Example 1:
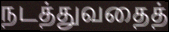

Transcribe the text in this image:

நடத்துவதைத்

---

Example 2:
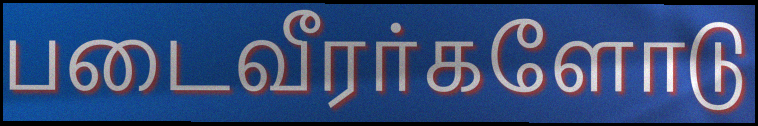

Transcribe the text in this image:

படைவீரர்களோடு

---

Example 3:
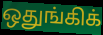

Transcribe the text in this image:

ஒதுங்கிக்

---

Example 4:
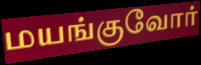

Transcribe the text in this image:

மயங்குவோர்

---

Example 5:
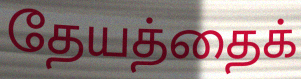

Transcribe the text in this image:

தேயத்தைக்